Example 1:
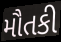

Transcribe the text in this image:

મૌતકી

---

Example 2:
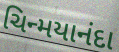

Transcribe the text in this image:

ચિન્મયાનંદા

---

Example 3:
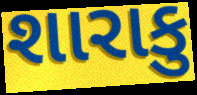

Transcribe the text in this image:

શારાકુ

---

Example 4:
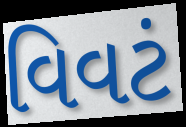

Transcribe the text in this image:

વિવટં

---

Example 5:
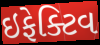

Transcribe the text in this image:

ઇફેક્ટિવ